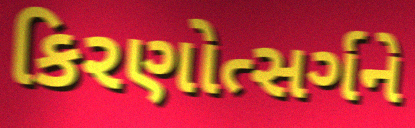
કિરણોત્સર્ગને